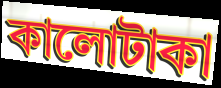
কালোটাকা